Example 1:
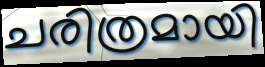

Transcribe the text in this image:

ചരിത്രമായി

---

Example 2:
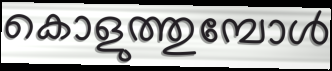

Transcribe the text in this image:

കൊളുത്തുമ്പോൾ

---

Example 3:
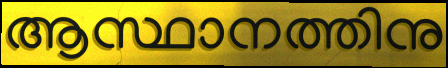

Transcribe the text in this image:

ആസ്ഥാനത്തിനു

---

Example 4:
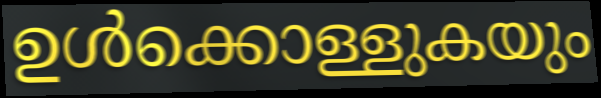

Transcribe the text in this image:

ഉൾക്കൊള്ളുകയും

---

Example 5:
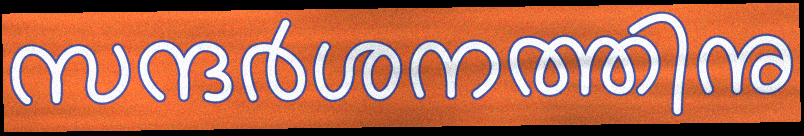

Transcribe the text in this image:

സന്ദർശനത്തിനു